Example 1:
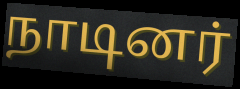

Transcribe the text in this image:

நாடினர்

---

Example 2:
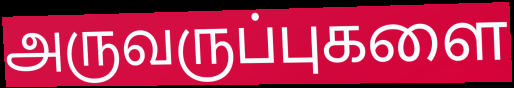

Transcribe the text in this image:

அருவருப்புகளை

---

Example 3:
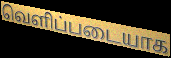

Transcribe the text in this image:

வெளிப்படையாக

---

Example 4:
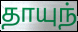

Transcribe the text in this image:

தாயுந்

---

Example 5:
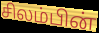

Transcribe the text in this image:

சிலம்பின்